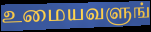
உமையவளுங்